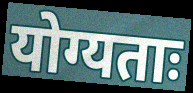
योग्यताः